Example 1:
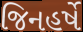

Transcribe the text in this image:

જિનહર્ષે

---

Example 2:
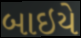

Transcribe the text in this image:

બાઇયે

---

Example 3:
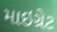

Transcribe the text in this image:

માઇગ્રેટ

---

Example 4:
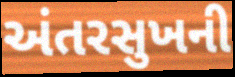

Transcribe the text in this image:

અંતરસુખની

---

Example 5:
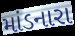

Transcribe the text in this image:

માંડનારા